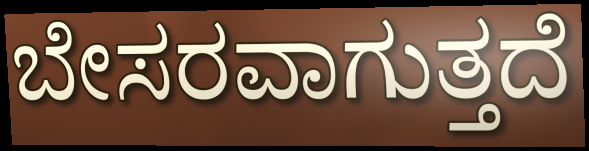
ಬೇಸರವಾಗುತ್ತದೆ